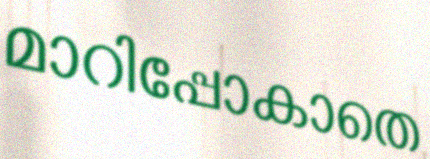
മാറിപ്പോകാതെ